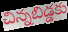
చిన్నబిడ్డకు